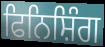
ਫਿਨਿਸ਼ਿੰਗ